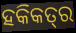
ହକିକତ୍‌ର